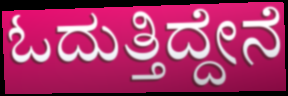
ಓದುತ್ತಿದ್ದೇನೆ